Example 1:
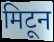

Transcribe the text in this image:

मिटून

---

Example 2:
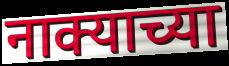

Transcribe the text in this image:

नाक्याच्या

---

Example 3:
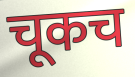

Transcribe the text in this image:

चूकच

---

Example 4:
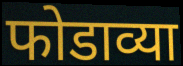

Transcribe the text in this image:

फोडाव्या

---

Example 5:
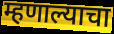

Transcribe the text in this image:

म्हणाल्याचा